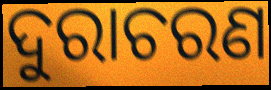
ଦୁରାଚରଣ